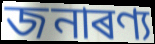
জনাৰণ্য